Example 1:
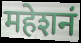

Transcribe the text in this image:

महेशनं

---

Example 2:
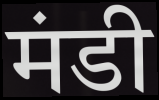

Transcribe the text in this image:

मंडी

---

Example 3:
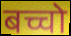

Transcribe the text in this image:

बच्चो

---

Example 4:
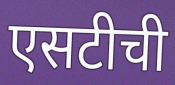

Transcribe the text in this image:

एसटीची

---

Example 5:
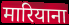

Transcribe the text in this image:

मारियाना